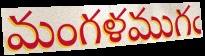
మంగళముగఁ